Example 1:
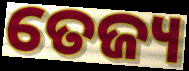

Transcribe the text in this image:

ତେଜ୍ୟ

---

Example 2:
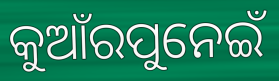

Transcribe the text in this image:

କୁଆଁରପୁନେଇଁ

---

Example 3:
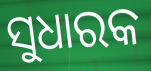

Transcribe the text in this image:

ସୁଧାରକ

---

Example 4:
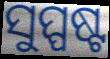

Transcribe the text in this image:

ସୁପ୍ପଷ୍ଟ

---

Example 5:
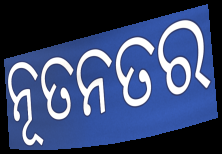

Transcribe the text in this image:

ନୂତନତର